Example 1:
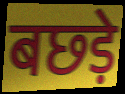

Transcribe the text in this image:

बछ्ड़े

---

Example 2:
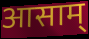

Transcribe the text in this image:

आसाम्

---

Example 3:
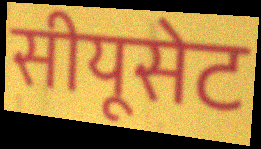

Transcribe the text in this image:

सीयूसेट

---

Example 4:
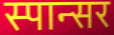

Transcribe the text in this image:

स्पान्सर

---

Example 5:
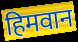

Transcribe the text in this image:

हिमवान